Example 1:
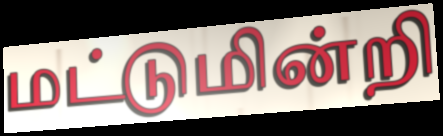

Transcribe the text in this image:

மட்டுமின்றி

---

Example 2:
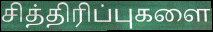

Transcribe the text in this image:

சித்திரிப்புகளை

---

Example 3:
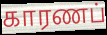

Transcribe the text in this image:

காரணப்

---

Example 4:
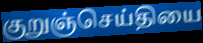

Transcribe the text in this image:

குறுஞ்செய்தியை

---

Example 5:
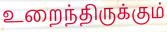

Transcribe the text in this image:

உறைந்திருக்கும்